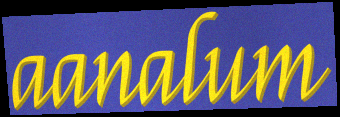
aanalum